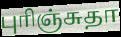
புரிஞ்சுதா